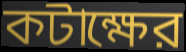
কটাক্ষের